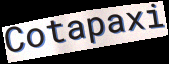
Cotapaxi